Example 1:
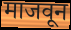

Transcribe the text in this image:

माजवून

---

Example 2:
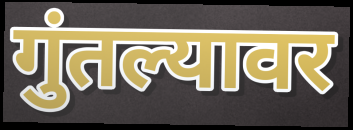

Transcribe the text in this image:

गुंतल्यावर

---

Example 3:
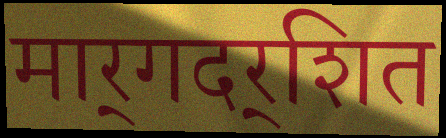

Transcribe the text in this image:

मार्गदर्शित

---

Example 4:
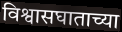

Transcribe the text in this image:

विश्वासघाताच्या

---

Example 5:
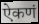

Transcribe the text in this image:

ऐकणं